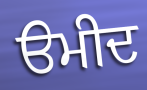
ੳਮੀਦ